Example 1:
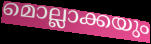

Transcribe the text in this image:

മൊല്ലാക്കയും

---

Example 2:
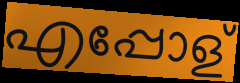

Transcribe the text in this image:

എപ്പോള്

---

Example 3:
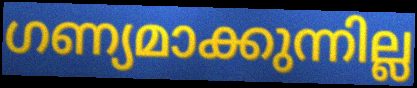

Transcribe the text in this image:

ഗണ്യമാക്കുന്നില്ല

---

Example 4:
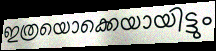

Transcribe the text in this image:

ഇത്രയൊക്കെയായിട്ടും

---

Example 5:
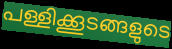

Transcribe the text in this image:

പള്ളിക്കൂടങ്ങളുടെ